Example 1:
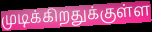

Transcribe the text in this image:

முடிக்கிறதுக்குள்ள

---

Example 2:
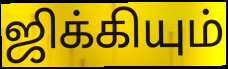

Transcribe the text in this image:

ஜிக்கியும்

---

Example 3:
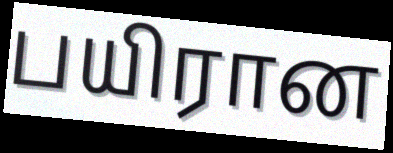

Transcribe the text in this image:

பயிரான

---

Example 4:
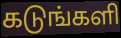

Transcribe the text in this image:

கடுங்களி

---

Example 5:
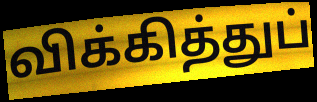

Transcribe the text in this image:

விக்கித்துப்